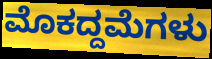
ಮೊಕದ್ದಮೆಗಳು